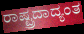
ರಾಷ್ಟ್ರದಾದ್ಯಂತ